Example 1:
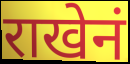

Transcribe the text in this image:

राखेनं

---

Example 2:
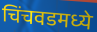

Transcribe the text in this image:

चिंचवडमध्ये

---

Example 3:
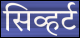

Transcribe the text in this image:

सिव्हर्ट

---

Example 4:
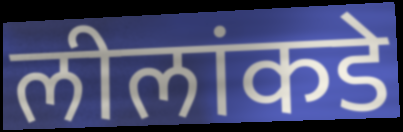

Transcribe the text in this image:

लीलांकडे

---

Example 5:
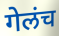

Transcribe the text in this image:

गेलंच